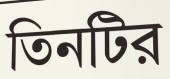
তিনটির